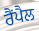
ਰੈਂਪੈਲ